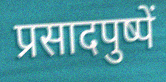
प्रसादपुष्पें